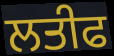
ਲਤੀਫ